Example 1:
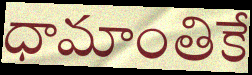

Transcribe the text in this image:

ధామాంతికే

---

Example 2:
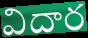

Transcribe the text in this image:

విదార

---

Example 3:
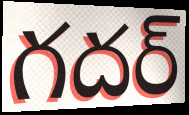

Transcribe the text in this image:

గదర్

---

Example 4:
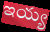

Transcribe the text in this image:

ఇయ్య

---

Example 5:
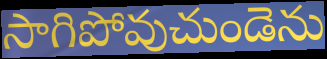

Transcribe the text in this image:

సాగిపోవుచుండెను